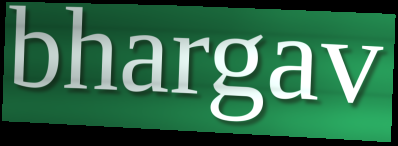
bhargav